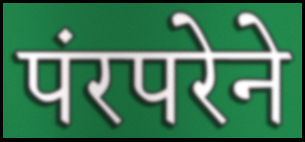
पंरपरेने